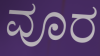
ವೂರ